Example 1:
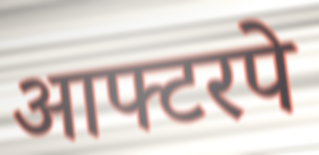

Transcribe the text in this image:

आफ्टरपे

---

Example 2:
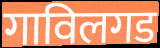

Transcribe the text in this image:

गाविलगड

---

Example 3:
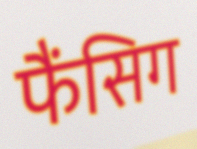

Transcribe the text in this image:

फैंसिग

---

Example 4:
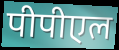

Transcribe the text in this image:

पीपीएल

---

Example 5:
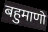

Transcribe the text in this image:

बहुमाणो